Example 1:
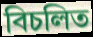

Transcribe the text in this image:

বিচলিত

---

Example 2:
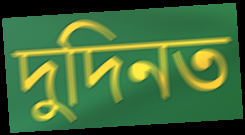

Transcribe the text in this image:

দুদিনত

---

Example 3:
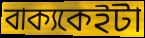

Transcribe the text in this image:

বাক্যকেইটা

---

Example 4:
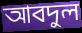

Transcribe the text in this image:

আবদুল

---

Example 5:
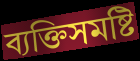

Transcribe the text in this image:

ব্যক্তিসমষ্টি